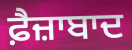
ਫ਼ੈਜ਼ਾਬਾਦ